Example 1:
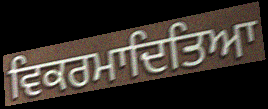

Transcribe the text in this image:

ਵਿਕਰਮਾਦਿਤਿਆ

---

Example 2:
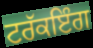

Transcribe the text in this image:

ਟਰੱਕਇੰਗ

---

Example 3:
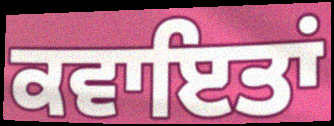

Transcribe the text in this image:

ਕਵਾਇਤਾਂ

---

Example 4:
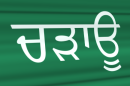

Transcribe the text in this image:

ਚੜਾਊ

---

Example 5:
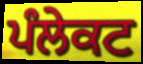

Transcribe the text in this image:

ਪੰਲੇਕਟ